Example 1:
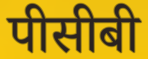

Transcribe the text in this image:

पीसीबी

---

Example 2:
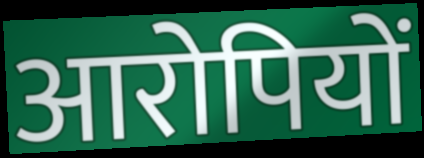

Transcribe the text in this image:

आरोपियों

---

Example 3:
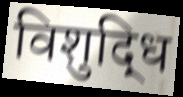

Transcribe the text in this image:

विशुद्धि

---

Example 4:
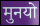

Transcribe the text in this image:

मुनयो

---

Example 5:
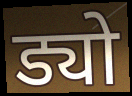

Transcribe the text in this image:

ड्यो